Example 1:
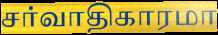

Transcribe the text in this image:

சர்வாதிகாரமா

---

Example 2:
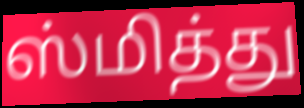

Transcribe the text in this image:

ஸ்மித்து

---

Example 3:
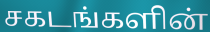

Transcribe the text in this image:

சகடங்களின்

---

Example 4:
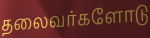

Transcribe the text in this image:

தலைவர்களோடு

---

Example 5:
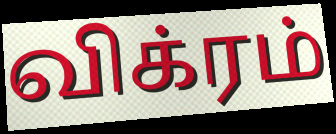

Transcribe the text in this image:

விக்ரம்